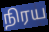
நிரய